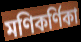
মণিকর্ণিকা